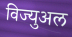
विज्युअल